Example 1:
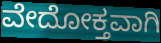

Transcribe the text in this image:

ವೇದೋಕ್ತವಾಗಿ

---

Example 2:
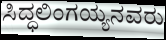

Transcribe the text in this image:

ಸಿದ್ಧಲಿಂಗಯ್ಯನವರು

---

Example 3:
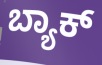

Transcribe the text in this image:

ಬ್ಯಾಕ್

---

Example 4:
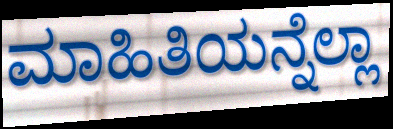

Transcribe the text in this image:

ಮಾಹಿತಿಯನ್ನೆಲ್ಲಾ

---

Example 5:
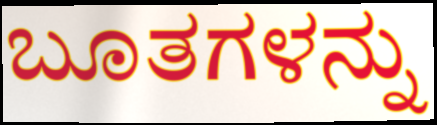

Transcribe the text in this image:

ಬೂತಗಳನ್ನು